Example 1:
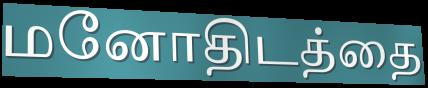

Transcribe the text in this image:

மனோதிடத்தை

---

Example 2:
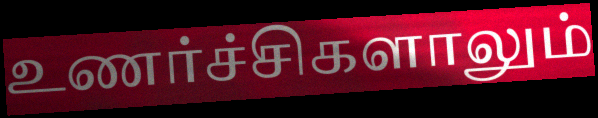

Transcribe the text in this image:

உணர்ச்சிகளாலும்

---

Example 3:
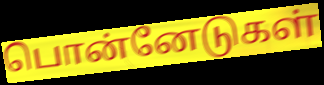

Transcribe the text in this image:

பொன்னேடுகள்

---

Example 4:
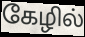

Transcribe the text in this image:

கேழில்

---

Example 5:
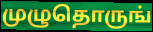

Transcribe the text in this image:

முழுதொருங்